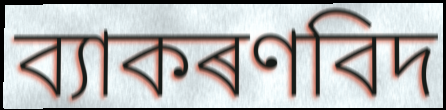
ব্যাকৰণবিদ